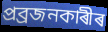
প্ৰব্ৰজনকাৰীৰ